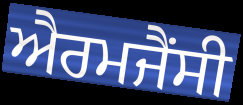
ਐਰਮਜੈਂਸੀ